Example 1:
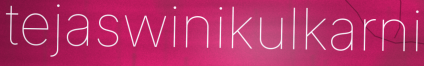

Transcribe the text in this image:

tejaswinikulkarni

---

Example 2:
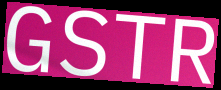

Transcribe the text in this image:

GSTR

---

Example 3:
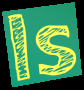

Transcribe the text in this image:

Is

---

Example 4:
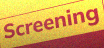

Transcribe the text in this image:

Screening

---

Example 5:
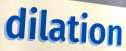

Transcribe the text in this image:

dilation